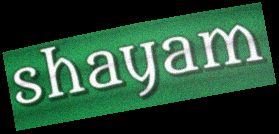
shayam